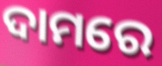
ଦାମରେ